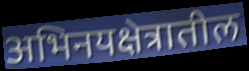
अभिनयक्षेत्रातील